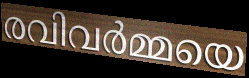
രവിവർമ്മയെ